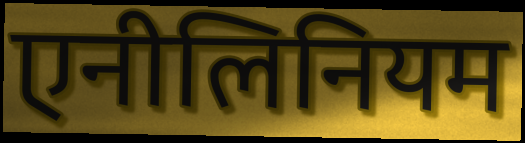
एनीलिनियम